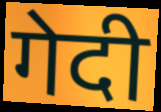
गेदी